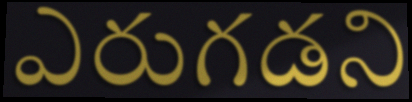
ఎరుగడని